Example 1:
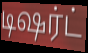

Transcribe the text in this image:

டிஷர்ட்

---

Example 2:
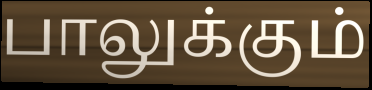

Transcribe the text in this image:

பாலுக்கும்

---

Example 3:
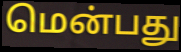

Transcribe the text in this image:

மென்பது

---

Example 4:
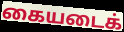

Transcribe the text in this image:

கையடைக்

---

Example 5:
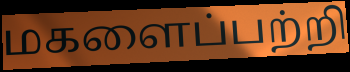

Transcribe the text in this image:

மகளைப்பற்றி